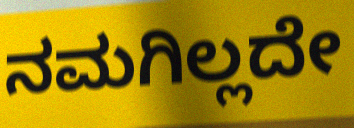
ನಮಗಿಲ್ಲದೇ